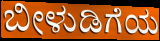
ಬೀಳುಡಿಗೆಯ